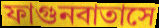
ফাগুনবাতাসে